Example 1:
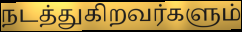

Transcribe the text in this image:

நடத்துகிறவர்களும்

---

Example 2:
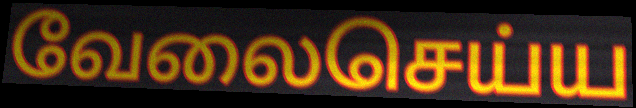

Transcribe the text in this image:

வேலைசெய்ய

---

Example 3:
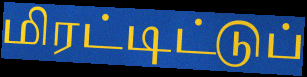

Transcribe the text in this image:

மிரட்டிட்டுப்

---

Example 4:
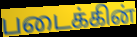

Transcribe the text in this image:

படைக்கின்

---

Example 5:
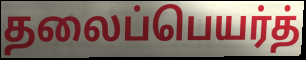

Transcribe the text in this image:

தலைப்பெயர்த்